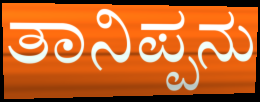
ತಾನಿಪ್ಪನು